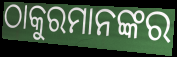
ଠାକୁରମାନଙ୍କର